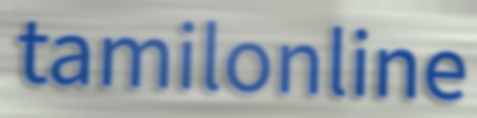
tamilonline